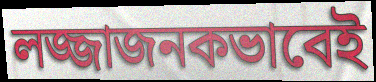
লজ্জাজনকভাবেই